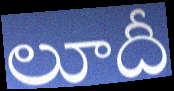
లూదీ